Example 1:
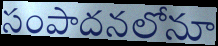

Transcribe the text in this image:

సంపాదనలోనూ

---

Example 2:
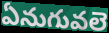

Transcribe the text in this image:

ఏనుగువలె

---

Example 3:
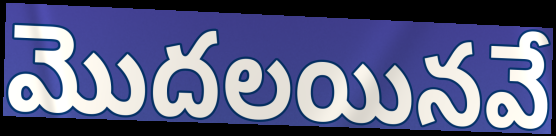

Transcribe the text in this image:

మొదలయినవే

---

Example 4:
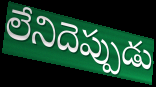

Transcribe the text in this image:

లేనిదెప్పుడు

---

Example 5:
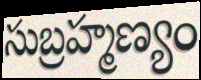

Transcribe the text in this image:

సుబ్రహ్మణ్యం